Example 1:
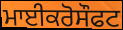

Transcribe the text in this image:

ਮਾਈਕਰੋਸੌਫਟ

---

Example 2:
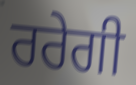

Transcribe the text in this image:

ਰਰੇਗੀ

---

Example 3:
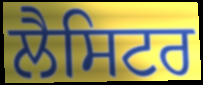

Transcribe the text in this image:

ਲੈਸਿਟਰ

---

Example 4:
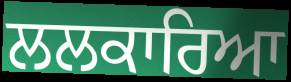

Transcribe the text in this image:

ਲਲਕਾਰਿਆ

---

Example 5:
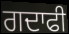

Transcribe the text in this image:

ਗਦਾਫੀ